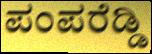
ಪಂಪರೆಡ್ಡಿ